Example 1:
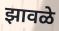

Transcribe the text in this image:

झावळे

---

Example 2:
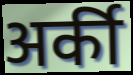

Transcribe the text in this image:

अर्की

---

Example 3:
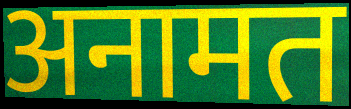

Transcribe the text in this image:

अनामत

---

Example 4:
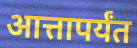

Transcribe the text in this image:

आत्तापर्यंत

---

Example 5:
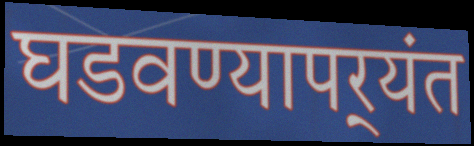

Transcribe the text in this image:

घडवण्यापर्यंत